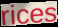
rices